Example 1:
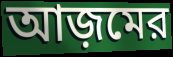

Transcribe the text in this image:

আজ়মের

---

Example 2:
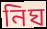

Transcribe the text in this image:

নিঘ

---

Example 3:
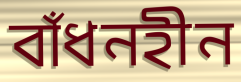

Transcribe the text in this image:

বাঁধনহীন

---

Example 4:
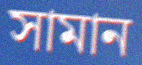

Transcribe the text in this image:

সামান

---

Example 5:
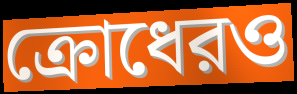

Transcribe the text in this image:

ক্রোধেরও